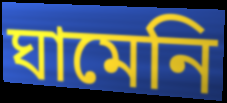
ঘামেনি